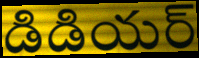
డిడియర్